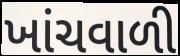
ખાંચવાળી